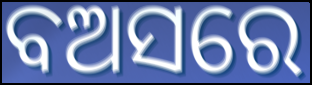
ବଅସରେ